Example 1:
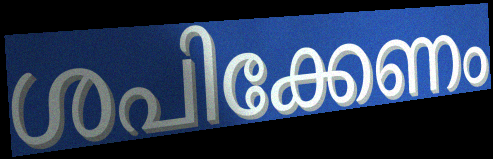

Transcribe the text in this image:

ശപിക്കേണം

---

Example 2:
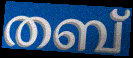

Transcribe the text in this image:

തബ്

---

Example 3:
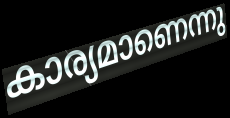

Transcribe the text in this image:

കാര്യമാണെന്നു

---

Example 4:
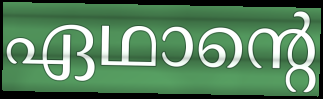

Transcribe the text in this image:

ഏഥാന്റെ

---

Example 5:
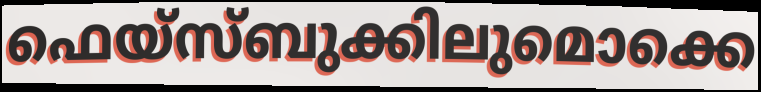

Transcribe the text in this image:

ഫെയ്സ്ബുക്കിലുമൊക്കെ